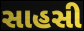
સાહસી